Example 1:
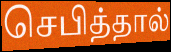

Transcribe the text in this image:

செபித்தால்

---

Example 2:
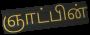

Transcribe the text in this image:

ஞாட்பின்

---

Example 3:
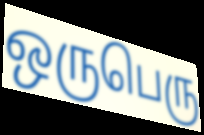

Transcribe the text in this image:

ஒருபெரு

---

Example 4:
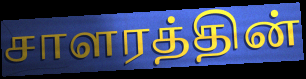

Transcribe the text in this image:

சாளரத்தின்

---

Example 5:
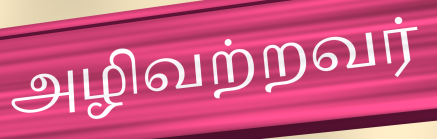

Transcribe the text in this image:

அழிவற்றவர்